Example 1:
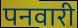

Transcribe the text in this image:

पनवारी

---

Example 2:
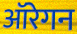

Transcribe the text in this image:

ऑरेगन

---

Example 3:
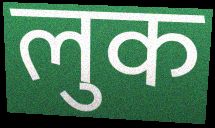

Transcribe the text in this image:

लुक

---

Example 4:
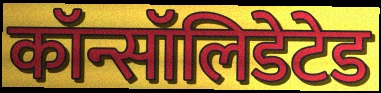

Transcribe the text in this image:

कॉन्सॉलिडेटेड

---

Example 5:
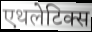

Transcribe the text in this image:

एथलेटिक्स